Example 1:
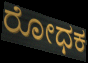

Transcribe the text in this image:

ರೋಧಕ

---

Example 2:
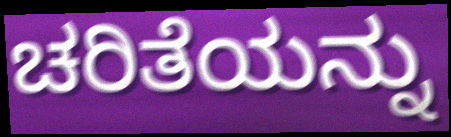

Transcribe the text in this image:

ಚರಿತೆಯನ್ನು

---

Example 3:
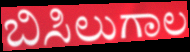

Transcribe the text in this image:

ಬಿಸಿಲುಗಾಲ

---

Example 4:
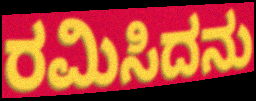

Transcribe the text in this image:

ರಮಿಸಿದನು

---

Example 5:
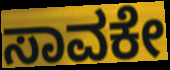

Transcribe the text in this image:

ಸಾವಕೇ